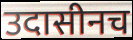
उदासीनच